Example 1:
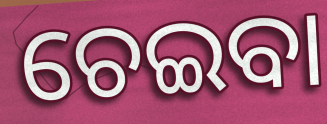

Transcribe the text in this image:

ଚେଇବା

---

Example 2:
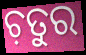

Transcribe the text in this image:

ଚ଼ତୁର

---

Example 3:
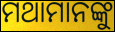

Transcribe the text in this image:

ମଥାମାନଙ୍କୁ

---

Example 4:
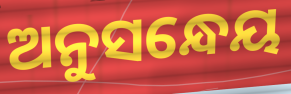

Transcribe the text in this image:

ଅନୁସନ୍ଧେୟ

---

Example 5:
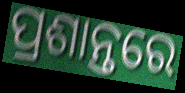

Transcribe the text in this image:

ପ୍ରଶାନ୍ତରେ